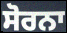
ਸੋਰਨਾ